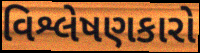
વિશ્લેષણકારો